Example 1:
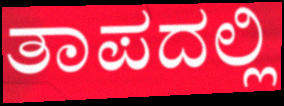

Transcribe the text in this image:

ತಾಪದಲ್ಲಿ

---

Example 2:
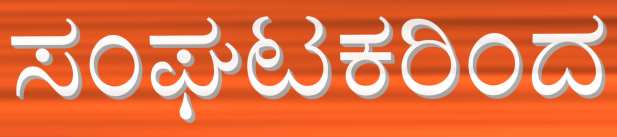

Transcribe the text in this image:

ಸಂಘಟಕರಿಂದ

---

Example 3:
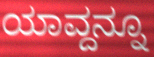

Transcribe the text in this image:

ಯಾವ್ದನ್ನೂ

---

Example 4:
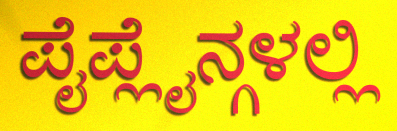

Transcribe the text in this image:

ಪೈಪ್ಲೈನ್ಗಳಲ್ಲಿ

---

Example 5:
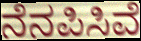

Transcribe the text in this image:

ನೆನಪಿಸಿವೆ